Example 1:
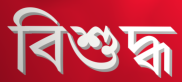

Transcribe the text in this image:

বিশুদ্ধ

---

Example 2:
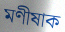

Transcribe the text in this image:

মণীষাক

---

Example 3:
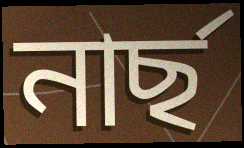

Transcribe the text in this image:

নাৰ্ছ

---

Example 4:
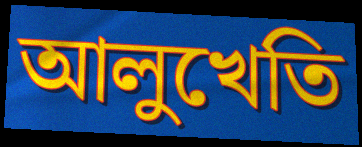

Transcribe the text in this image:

আলুখেতি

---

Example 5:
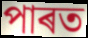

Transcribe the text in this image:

পাৰত